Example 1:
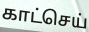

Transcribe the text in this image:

காட்செய்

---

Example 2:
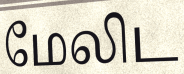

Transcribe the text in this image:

மேலிட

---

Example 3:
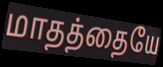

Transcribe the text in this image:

மாதத்தையே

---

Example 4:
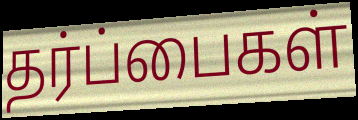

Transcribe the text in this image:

தர்ப்பைகள்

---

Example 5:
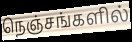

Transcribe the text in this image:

நெஞ்சங்களில்